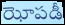
ఝోపడీ